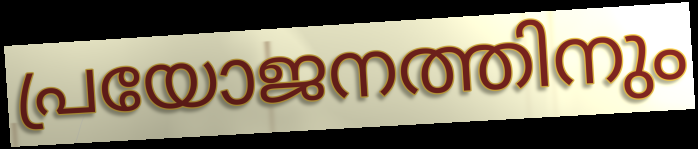
പ്രയോജനത്തിനും